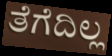
ತೆಗೆದಿಲ್ಲ